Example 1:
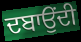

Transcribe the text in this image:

ਦਬਾਉਂਦੀ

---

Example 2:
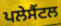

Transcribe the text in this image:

ਪਲੇਸੈਂਟਲ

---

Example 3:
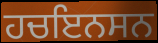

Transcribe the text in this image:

ਹਚਇਨਸਨ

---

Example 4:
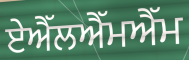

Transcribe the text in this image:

ਏਐੱਲਐੱਮਐੱਮ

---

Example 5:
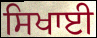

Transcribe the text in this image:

ਸਿਖਾਈ